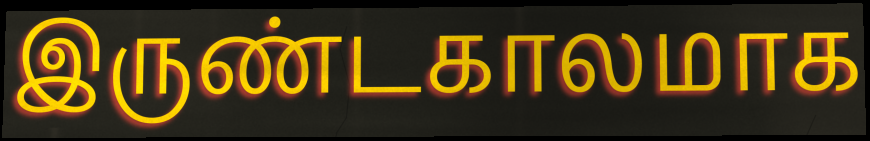
இருண்டகாலமாக